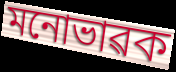
মনোভাৱক